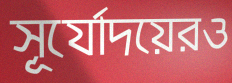
সূর্যোদয়েরও